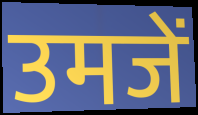
उमजें